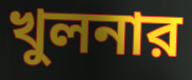
খুলনার